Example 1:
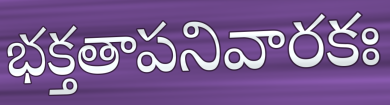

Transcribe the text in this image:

భక్తతాపనివారకః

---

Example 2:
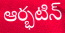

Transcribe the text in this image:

ఆర్భటిన్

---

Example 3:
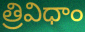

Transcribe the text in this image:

త్రివిధాం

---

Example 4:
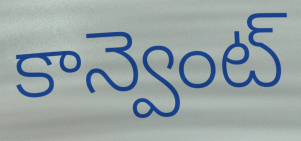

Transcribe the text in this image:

కాన్వెంట్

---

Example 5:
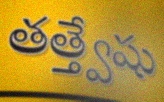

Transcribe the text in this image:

తత్త్వేషు